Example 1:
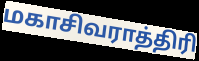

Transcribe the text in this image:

மகாசிவராத்திரி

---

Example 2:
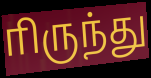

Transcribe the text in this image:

ரிருந்து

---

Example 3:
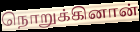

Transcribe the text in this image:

நொறுக்கினான்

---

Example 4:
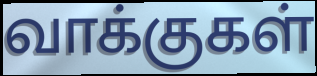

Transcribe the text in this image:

வாக்குகள்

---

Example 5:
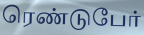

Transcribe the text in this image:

ரெண்டுபேர்